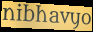
nibhavyo